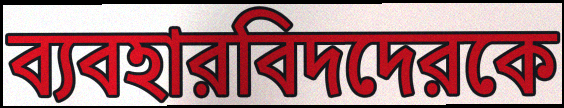
ব্যবহারবিদদেরকে